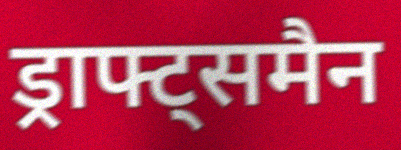
ड्राफ्ट्समैन